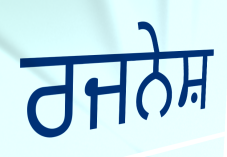
ਰਜਨੇਸ਼